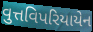
વુત્તવિપરિયાયેન